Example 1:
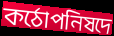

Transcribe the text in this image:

কঠোপনিষদে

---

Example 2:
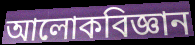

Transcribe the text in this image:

আলোকবিজ্ঞান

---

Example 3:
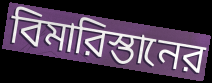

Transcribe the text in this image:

বিমারিস্তানের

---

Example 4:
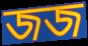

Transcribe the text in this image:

জজ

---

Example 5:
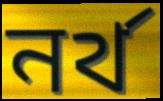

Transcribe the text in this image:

নর্থ